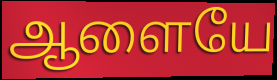
ஆளையே